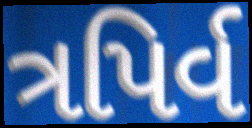
ત્રપિર્વ